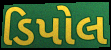
ડિપોલ